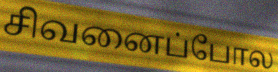
சிவனைப்போல